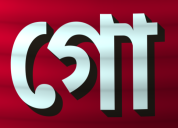
গো